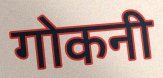
गोकनी